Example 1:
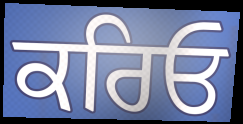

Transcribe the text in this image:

ਕਰਿਓ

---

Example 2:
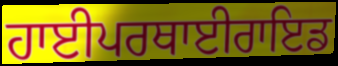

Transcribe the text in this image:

ਹਾਈਪਰਥਾਈਰਾਇਡ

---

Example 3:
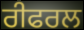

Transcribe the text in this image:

ਰੀਫਰਲ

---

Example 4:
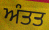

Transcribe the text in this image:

ਅੰਤਤ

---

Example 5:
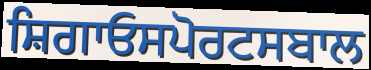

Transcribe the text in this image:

ਸ਼ਿਗਾਓਸਪੋਰਟਸਬਾਲ